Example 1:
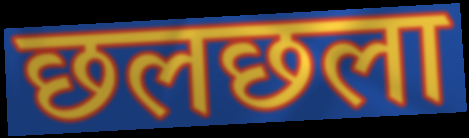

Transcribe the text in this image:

छलछला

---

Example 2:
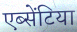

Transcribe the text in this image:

एब्सेंटिया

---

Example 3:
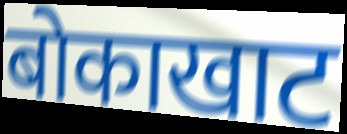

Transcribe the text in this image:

बोकाखाट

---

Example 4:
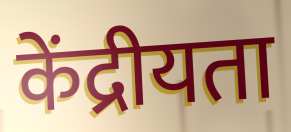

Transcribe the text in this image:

केंद्रीयता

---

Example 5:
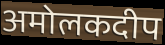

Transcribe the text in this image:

अमोलकदीप